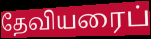
தேவியரைப்